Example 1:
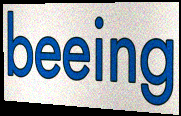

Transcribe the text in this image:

beeing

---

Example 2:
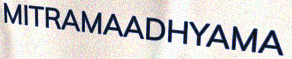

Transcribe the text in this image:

MITRAMAADHYAMA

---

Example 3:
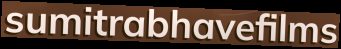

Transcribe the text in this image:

sumitrabhavefilms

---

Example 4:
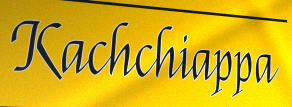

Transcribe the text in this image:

Kachchiappa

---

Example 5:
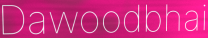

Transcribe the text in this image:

Dawoodbhai